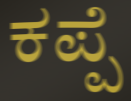
ಕಪ್ಪೆ